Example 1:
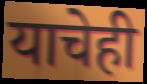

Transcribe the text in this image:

याचेही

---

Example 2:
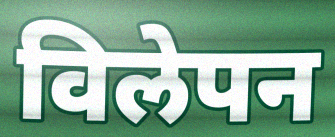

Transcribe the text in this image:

विलेपन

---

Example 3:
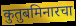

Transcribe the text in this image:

कुतुबमिनारचा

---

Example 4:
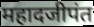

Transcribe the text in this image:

महादजीपंत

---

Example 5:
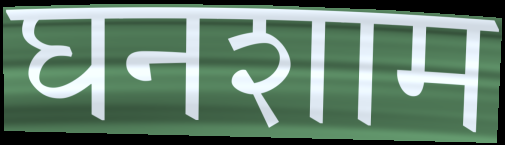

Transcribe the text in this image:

घनशाम